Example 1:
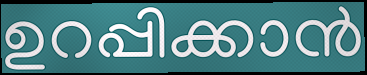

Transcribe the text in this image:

ഉറപ്പിക്കാൻ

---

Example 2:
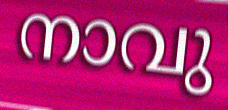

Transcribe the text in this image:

നാവു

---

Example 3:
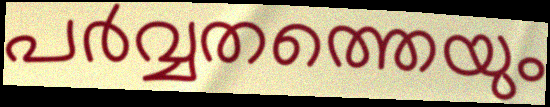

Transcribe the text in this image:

പർവ്വതത്തെയും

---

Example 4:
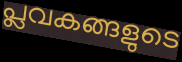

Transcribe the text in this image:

പ്ലവകങ്ങളുടെ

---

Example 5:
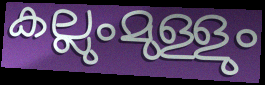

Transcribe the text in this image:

കല്ലുംമുള്ളും